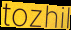
tozhil